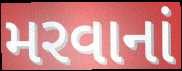
મરવાનાં